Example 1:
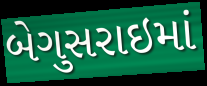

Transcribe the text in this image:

બેગુસરાઇમાં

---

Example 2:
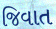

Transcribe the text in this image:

જિવાત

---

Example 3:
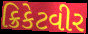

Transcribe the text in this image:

ક્રિકેટવીર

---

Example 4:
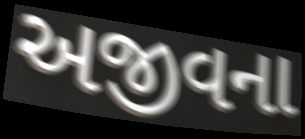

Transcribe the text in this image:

અજીવના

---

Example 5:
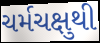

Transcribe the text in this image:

ચર્મચક્ષુથી